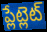
ప్లేట్లెట్